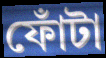
ফোঁটা